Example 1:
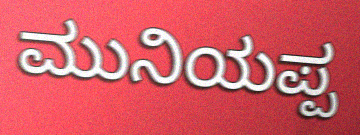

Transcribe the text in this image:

ಮುನಿಯಪ್ಪ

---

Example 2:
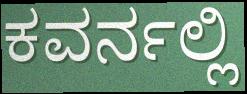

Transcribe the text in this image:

ಕವರ್ನಲ್ಲಿ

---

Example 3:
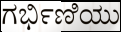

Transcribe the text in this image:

ಗರ್ಭಿಣಿಯು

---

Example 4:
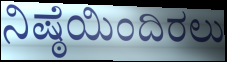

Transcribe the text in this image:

ನಿಷ್ಠೆಯಿಂದಿರಲು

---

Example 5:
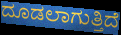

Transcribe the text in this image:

ದೂಡಲಾಗುತ್ತಿದೆ